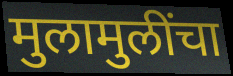
मुलामुलींचा